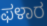
ಫಳಾರ